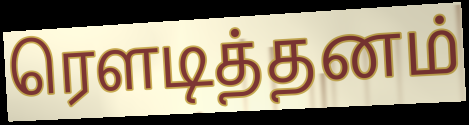
ரௌடித்தனம்